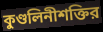
কুণ্ডলিনীশক্তির